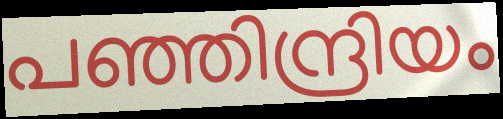
പഞ്ഞിന്ദ്രിയം